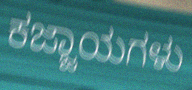
ಕಜ್ಜಾಯಗಳು